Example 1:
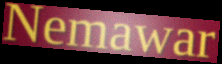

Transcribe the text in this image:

Nemawar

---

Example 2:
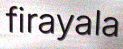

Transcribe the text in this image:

firayala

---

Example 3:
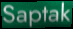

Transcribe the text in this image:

Saptak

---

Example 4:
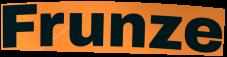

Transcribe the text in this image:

Frunze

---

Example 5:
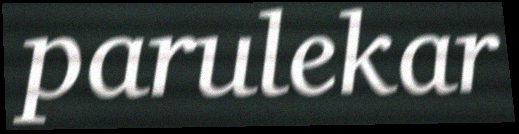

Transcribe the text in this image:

parulekar